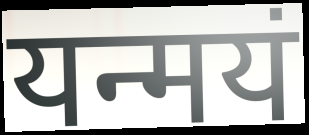
यन्मयं